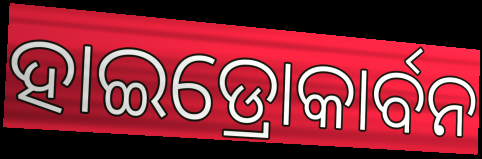
ହାଇଡ୍ରୋକାର୍ବନ